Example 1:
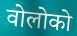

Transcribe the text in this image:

वोलोको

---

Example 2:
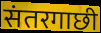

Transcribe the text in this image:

संतरगाछी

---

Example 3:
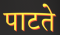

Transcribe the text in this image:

पाटते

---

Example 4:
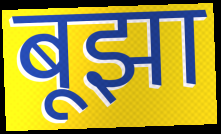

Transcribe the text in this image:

बूझा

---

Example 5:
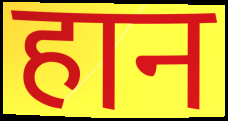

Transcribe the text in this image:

हान